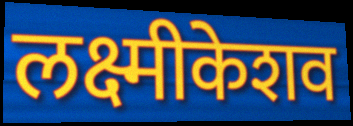
लक्ष्मीकेशव